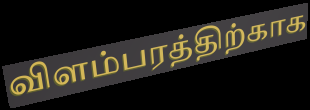
விளம்பரத்திற்காக